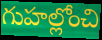
గుహల్లోంచి